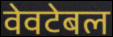
वेवटेबल